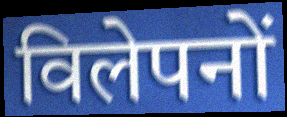
विलेपनों